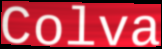
Colva